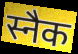
स्नैक